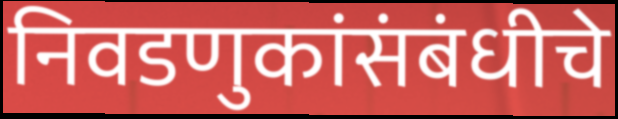
निवडणुकांसंबंधीचे